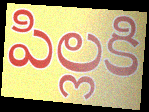
పిల్లకి